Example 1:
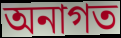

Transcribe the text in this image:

অনাগত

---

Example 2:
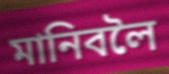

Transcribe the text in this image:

মানিবলৈ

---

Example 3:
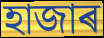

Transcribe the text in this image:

হাজাৰ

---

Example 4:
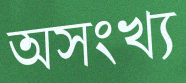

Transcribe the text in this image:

অসংখ্য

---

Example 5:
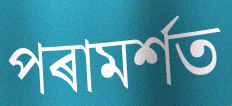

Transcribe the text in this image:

পৰামৰ্শত